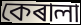
কেৰালা